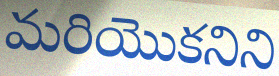
మరియొకనిని